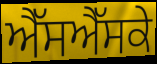
ਐੱਸਐੱਸਕੇ